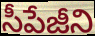
సీపేజీని